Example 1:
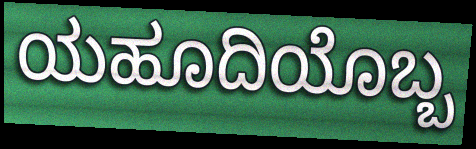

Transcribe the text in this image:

ಯಹೂದಿಯೊಬ್ಬ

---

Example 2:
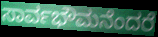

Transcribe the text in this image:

ಸಾರ್ವಭೌಮನೆಂದರೆ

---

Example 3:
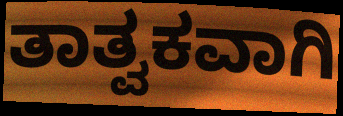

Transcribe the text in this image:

ತಾತ್ವಕವಾಗಿ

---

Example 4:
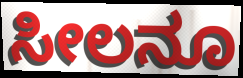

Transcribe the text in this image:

ಸೀಲನೂ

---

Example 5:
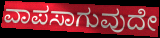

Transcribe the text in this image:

ವಾಪಸಾಗುವುದೇ